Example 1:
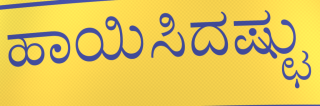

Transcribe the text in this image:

ಹಾಯಿಸಿದಷ್ಟು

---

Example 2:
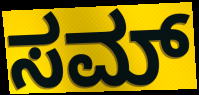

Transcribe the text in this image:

ಸಮ್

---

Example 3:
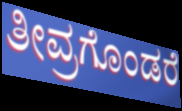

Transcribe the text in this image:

ತೀವ್ರಗೊಂಡರೆ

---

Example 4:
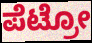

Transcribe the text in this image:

ಪೆಟ್ರೋ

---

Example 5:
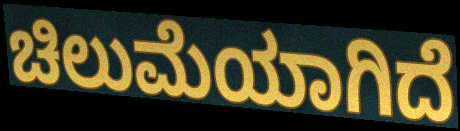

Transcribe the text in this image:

ಚಿಲುಮೆಯಾಗಿದೆ